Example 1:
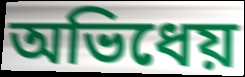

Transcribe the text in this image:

অভিধেয়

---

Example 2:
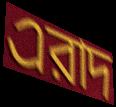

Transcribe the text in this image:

এরাদ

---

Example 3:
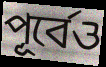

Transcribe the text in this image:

পূর্বেও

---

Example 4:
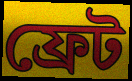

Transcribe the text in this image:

ফ্রেট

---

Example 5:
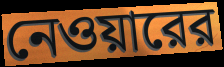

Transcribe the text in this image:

নেওয়ারের